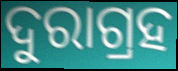
ଦୁରାଗ୍ରହ